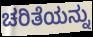
ಚರಿತೆಯನ್ನು